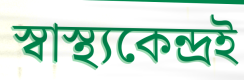
স্বাস্থ্যকেন্দ্ৰই